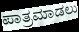
ಪಾತ್ರಮಾಡಲು